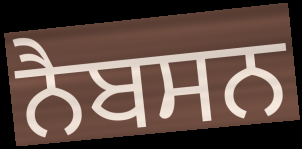
ਨੈਬਸਨ